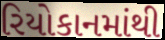
રિયોકાનમાંથી